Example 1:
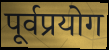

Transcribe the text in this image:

पूर्वप्रयोग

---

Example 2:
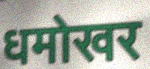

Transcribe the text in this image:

धमोखर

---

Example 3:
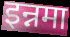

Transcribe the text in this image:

इन्नमा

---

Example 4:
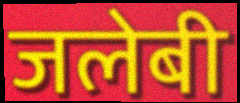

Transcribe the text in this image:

जलेबी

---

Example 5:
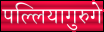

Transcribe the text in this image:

पल्लियागुरुगे